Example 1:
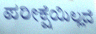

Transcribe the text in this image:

ಪರೀಕ್ಷೆಯಿಲ್ಲದೆ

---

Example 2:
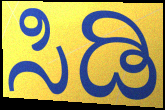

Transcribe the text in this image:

ಸಿಡಿ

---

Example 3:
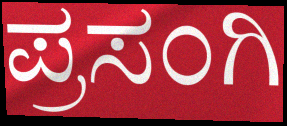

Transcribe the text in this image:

ಪ್ರಸಂಗಿ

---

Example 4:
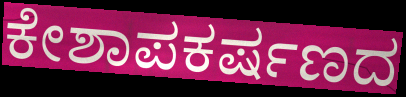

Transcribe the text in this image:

ಕೇಶಾಪಕರ್ಷಣದ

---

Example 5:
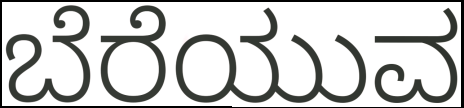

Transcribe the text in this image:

ಬೆರೆಯುವ